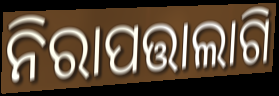
ନିରାପତ୍ତାଲାଗି